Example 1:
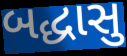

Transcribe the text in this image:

બદ્ધાસુ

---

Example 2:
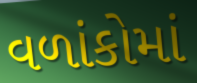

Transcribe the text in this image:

વળાંકોમાં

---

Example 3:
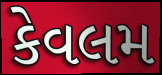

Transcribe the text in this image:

કેવલમ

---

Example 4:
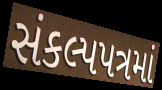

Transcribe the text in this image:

સંકલ્પપત્રમાં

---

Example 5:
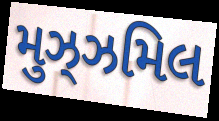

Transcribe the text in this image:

મુઝ્ઝમિલ